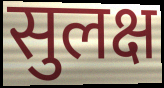
सुलक्ष